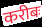
करीबः